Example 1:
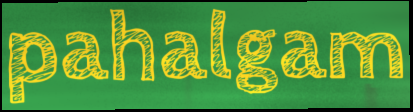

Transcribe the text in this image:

pahalgam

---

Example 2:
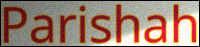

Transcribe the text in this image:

Parishah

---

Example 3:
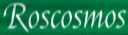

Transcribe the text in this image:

Roscosmos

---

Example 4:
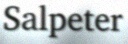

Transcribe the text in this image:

Salpeter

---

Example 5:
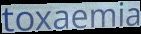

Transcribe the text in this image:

toxaemia